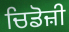
ਚਿਡੋਜ਼ੀ